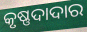
କୃଷ୍ଣଦାଦାର